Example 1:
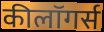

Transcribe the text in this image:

कीलॉगर्स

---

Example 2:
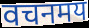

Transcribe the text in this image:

वचनमय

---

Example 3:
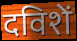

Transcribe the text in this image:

दविशें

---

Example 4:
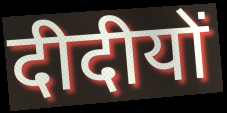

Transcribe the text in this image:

दीदीयों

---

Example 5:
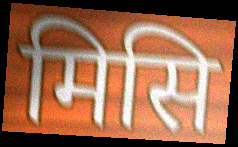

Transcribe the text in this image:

मिसि